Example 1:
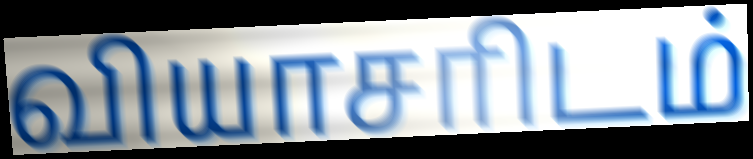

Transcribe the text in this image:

வியாசரிடம்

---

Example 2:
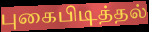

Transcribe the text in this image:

புகைபிடித்தல்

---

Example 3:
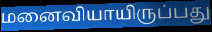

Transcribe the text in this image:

மனைவியாயிருப்பது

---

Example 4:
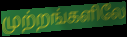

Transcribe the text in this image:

முற்றங்களிலே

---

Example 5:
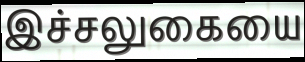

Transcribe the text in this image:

இச்சலுகையை